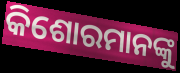
କିଶୋରମାନଙ୍କୁ